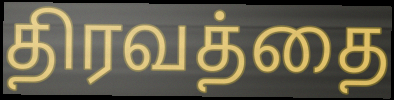
திரவத்தை